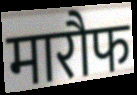
मारौफ